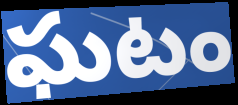
ఘటం